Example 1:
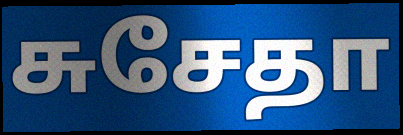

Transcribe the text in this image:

சுசேதா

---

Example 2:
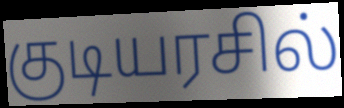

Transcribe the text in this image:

குடியரசில்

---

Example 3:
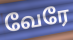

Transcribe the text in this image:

வேரே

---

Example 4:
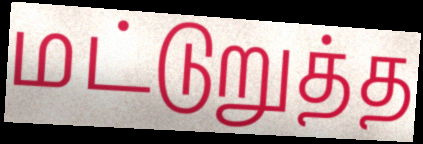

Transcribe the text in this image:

மட்டுறுத்த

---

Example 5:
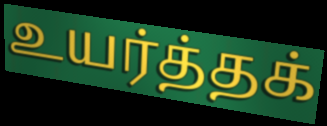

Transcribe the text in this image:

உயர்த்தக்